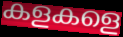
കളകളെ